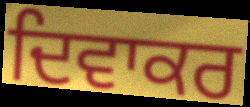
ਦਿਵਾਕਰ